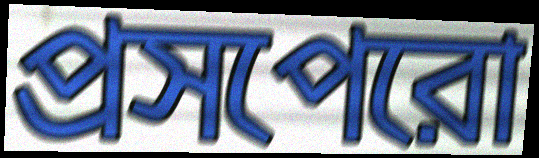
প্রসপেরো